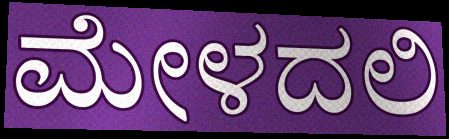
ಮೇಳದಲಿ